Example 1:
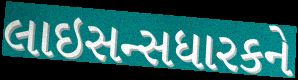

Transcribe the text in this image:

લાઇસન્સધારકને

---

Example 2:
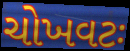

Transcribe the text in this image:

ચોખવટઃ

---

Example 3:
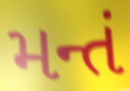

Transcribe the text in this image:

મન્તં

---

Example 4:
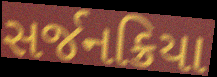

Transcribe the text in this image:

સર્જનક્રિયા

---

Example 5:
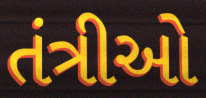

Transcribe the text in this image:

તંત્રીઓ